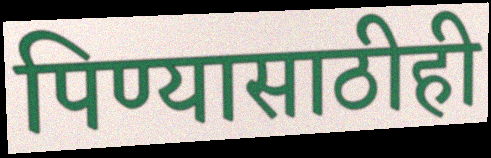
पिण्यासाठीही